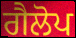
ਗੈਲੋਪ